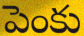
పెంకు